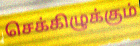
செக்கிழுக்கும்